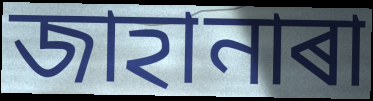
জাহানাৰা